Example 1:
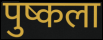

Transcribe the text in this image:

पुष्कला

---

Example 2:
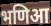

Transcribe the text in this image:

भणिआ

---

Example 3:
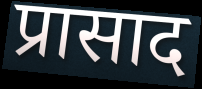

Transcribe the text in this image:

प्रासाद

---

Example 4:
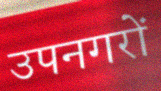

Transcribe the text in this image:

उपनगरों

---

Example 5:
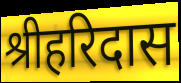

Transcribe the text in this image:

श्रीहरिदास